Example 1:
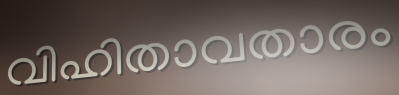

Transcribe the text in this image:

വിഹിതാവതാരം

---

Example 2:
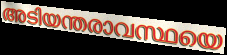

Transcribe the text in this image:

അടിയന്തരാവസ്ഥയെ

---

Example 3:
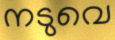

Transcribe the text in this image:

നടുവെ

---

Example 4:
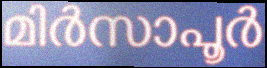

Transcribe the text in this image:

മിർസാപൂർ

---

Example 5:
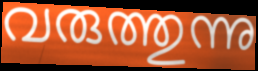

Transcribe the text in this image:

വരുത്തുന്നു